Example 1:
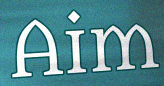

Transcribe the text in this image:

Aim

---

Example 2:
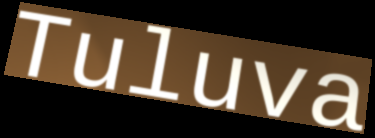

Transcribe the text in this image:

Tuluva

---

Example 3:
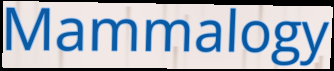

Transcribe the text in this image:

Mammalogy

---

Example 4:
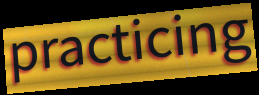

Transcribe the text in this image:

practicing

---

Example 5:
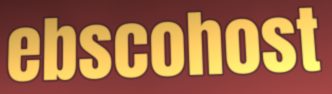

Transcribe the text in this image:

ebscohost